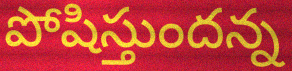
పోషిస్తుందన్న